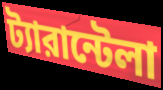
ট্যারান্টেলা